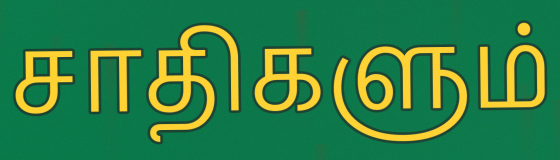
சாதிகளும்